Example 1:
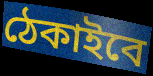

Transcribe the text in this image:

ঠেকাইবে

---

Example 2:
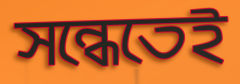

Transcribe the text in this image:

সন্ধেতেই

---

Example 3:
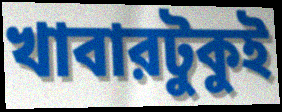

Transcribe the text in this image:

খাবারটুকুই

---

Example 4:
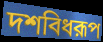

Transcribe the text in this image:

দশবিধরূপ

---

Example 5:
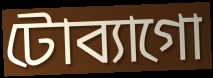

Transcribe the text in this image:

টোব্যাগো